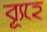
ব্যূহে